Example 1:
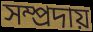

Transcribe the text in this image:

সম্প্রদায়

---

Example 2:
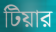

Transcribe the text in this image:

টিয়ার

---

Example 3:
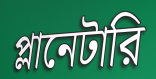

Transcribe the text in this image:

প্লানেটারি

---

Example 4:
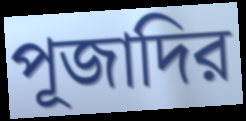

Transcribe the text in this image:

পূজাদির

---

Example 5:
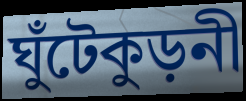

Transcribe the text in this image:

ঘুঁটেকুড়নী